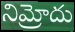
నిమ్రోదు